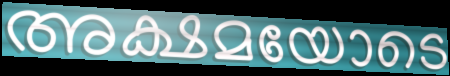
അക്ഷമയോടെ